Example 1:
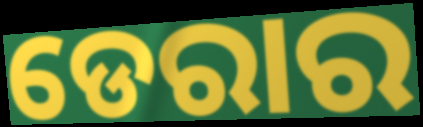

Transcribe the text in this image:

ଡେରାର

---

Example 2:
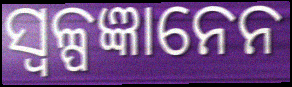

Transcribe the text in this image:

ସ୍ଵଳ୍ପଜ୍ଞାନେନ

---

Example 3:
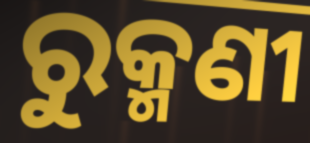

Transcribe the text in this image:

ରୁକ୍ମଣୀ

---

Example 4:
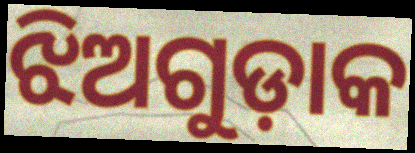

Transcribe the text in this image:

ଝିଅଗୁଡ଼ାକ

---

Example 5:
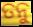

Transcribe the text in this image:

ତନୁ